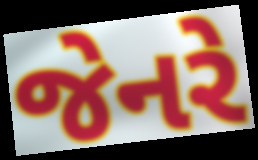
જેનરે